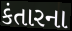
કંતારના